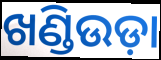
ଖଣ୍ଡିଉଡ଼ା